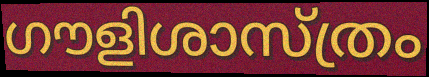
ഗൗളിശാസ്ത്രം